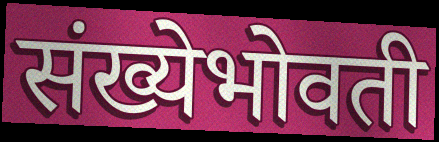
संख्येभोवती